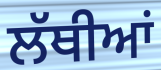
ਲੱਥੀਆਂ